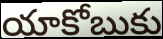
యాకోబుకు